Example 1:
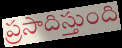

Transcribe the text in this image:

ప్రసాదిస్తుంది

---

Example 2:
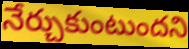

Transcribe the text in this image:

నేర్చుకుంటుందని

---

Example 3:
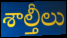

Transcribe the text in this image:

శాల్తీలు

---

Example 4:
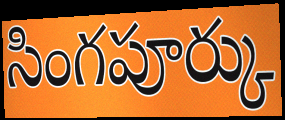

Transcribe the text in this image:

సింగపూర్కు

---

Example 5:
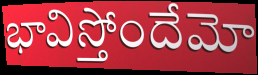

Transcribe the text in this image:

భావిస్తోందేమో